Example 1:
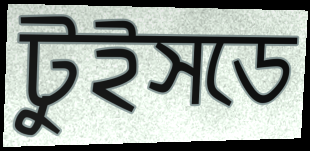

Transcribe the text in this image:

টুইসডে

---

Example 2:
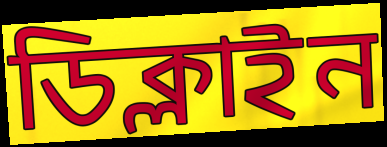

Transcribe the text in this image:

ডিক্লাইন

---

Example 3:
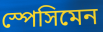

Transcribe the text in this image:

স্পেসিমেন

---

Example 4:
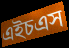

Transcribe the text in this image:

এইচএস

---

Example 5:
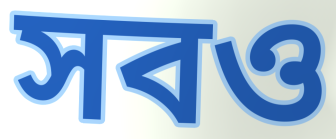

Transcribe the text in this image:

সবও